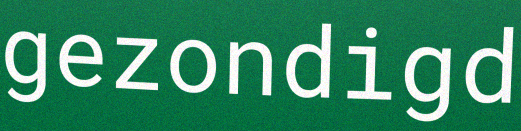
gezondigd